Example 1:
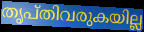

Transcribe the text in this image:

തൃപ്തിവരുകയില്ല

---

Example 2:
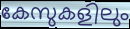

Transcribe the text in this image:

കേസുകളിലും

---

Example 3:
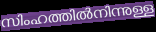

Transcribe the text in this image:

സിംഹത്തിൽനിന്നുള്ള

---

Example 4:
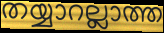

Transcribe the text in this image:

തയ്യാറല്ലാത്ത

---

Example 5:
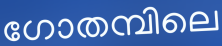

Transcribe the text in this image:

ഗോതമ്പിലെ